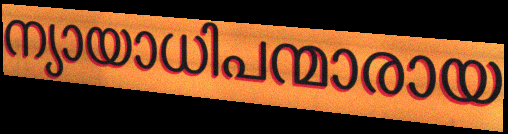
ന്യായാധിപന്മാരായ